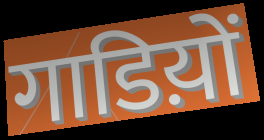
गाडिय़ों